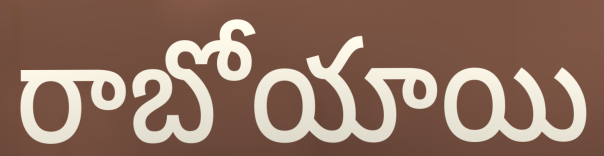
రాబోయాయి